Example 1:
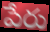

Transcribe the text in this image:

పేరు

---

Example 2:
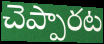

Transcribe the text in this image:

చెప్పారట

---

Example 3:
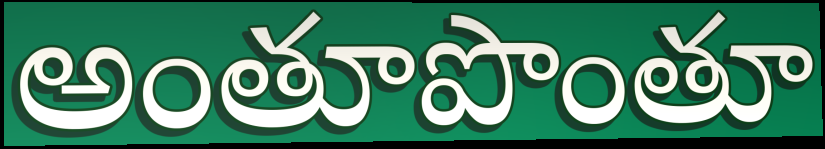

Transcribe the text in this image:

అంతూపొంతూ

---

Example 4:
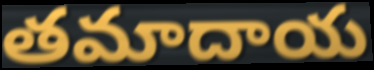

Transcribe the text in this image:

తమాదాయ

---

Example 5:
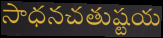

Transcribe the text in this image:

సాధనచతుష్టయ